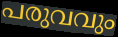
പരുവവും